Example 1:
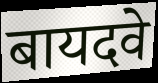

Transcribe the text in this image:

बायदवे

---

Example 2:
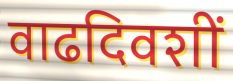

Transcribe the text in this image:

वाढदिवशीं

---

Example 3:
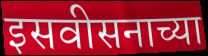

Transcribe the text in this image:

इसवीसनाच्या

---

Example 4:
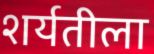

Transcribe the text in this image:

शर्यतीला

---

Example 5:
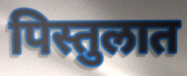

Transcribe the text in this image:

पिस्तुलात